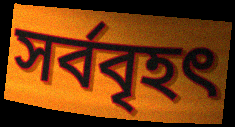
সর্ববৃহৎ